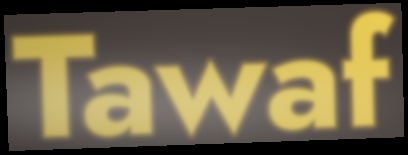
Tawaf